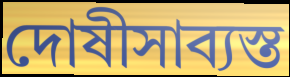
দোষীসাব্যস্ত